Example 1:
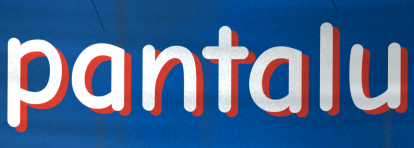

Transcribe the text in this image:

pantalu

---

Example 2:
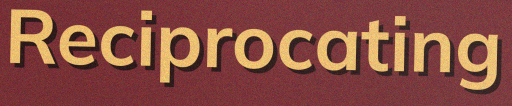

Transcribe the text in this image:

Reciprocating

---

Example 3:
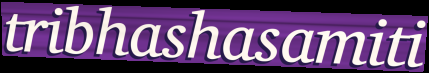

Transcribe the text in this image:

tribhashasamiti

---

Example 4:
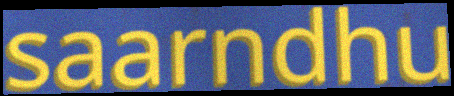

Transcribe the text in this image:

saarndhu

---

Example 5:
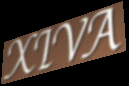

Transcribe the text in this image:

XIVA